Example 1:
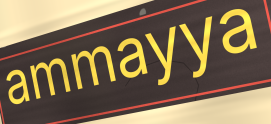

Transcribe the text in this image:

ammayya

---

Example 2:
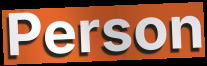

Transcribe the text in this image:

Person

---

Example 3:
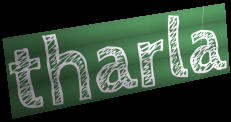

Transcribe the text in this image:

tharla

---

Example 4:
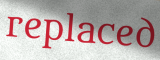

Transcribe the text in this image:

replaced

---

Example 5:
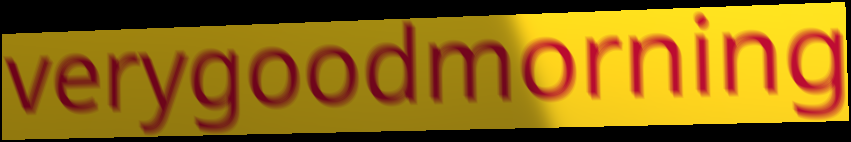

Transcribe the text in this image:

verygoodmorning